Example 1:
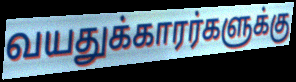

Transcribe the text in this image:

வயதுக்காரர்களுக்கு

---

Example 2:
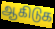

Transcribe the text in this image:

ஆகிடுக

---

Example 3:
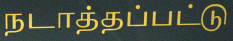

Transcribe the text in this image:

நடாத்தப்பட்டு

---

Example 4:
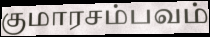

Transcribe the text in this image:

குமாரசம்பவம்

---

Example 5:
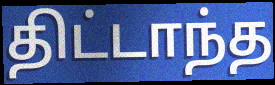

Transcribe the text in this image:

திட்டாந்த